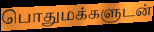
பொதுமக்களுடன்